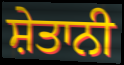
ਸ਼ੇਤਾਨੀ